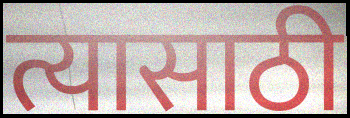
त्यासाठी